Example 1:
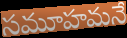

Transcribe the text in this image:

సమూహమనే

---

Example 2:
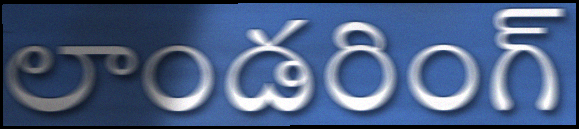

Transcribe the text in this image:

లాండరింగ్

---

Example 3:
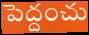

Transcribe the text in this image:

పెద్దంచు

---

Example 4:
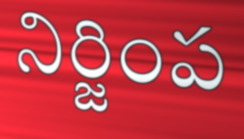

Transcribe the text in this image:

నిర్జింప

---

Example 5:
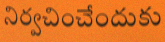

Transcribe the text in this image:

నిర్వచించేందుకు